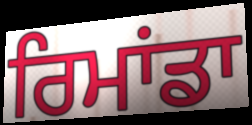
ਰਿਮਾਂਡਾ